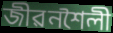
জীৱনশৈলী